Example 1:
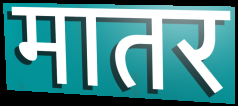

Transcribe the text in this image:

मातर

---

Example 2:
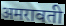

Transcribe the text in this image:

अमरावती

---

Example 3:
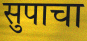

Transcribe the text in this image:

सुपाचा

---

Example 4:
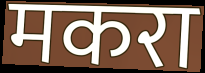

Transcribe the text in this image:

मकरा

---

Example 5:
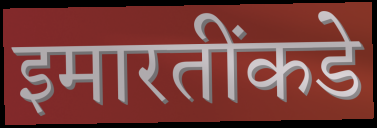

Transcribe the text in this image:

इमारतींकडे